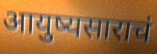
आयुष्यसाराचं